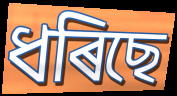
ধৰিছে